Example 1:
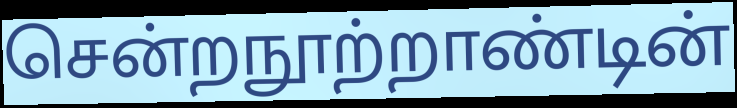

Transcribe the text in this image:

சென்றநூற்றாண்டின்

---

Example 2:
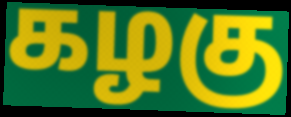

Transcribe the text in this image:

கழகு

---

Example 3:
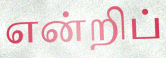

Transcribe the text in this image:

என்றிப்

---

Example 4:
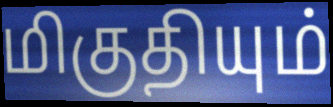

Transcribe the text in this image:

மிகுதியும்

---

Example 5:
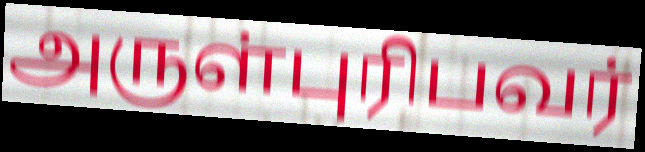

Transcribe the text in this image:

அருள்புரிபவர்